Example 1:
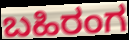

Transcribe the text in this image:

ಬಹಿರಂಗ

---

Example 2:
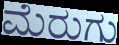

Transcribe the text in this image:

ಮೆರುಗು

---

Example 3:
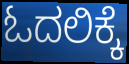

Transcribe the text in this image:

ಓದಲಿಕ್ಕೆ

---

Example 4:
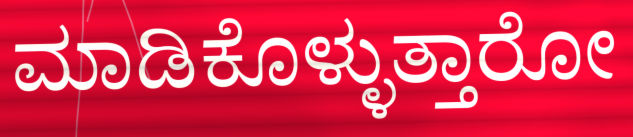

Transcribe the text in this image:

ಮಾಡಿಕೊಳ್ಳುತ್ತಾರೋ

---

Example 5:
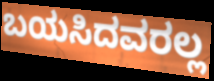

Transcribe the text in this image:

ಬಯಸಿದವರಲ್ಲ